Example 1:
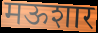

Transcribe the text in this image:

मऊशार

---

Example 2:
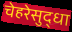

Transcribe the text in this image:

चेहरेसुद्धा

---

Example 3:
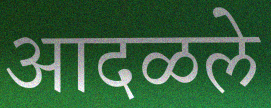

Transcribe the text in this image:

आदळले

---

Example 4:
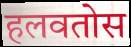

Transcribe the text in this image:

हलवतोस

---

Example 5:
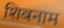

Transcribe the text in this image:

शिवनाम